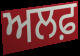
ਅਲਫ਼